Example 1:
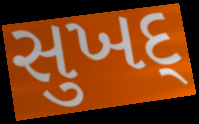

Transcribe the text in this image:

સુખદ્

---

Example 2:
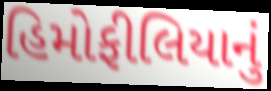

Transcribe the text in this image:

હિમોફીલિયાનું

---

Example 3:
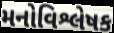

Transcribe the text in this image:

મનોવિશ્લેષક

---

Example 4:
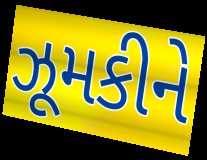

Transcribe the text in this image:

ઝૂમકીને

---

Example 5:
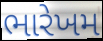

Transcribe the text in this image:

ભારેખમ